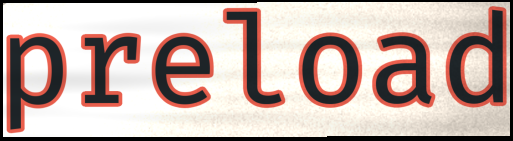
preload